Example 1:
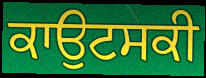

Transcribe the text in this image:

ਕਾਉਟਸਕੀ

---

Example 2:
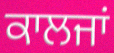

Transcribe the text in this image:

ਕਾਲਜਾਂ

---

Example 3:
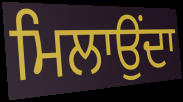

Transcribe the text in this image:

ਮਿਲਾਉਂਦਾ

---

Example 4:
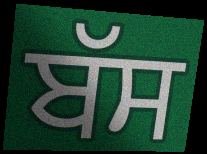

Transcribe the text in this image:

ਬੱਸ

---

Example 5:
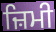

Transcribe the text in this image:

ਜ਼ਿਮੀ